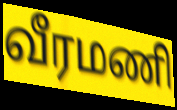
வீரமணி